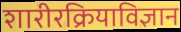
शारीरक्रियाविज्ञान